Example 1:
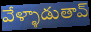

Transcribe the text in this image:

వేళ్ళాడుతావ్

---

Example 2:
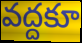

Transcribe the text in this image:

వద్దకూ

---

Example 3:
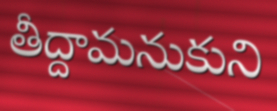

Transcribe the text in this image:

తీద్దామనుకుని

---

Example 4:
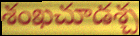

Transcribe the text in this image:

శంఖచూడశ్చ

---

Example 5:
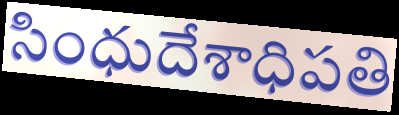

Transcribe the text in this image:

సింధుదేశాధిపతి